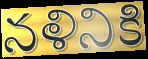
నళినికి